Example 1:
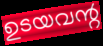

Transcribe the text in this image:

ഉടയവന്റ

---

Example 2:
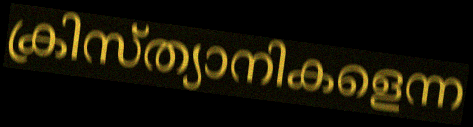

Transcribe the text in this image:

ക്രിസ്ത്യാനികളെന്ന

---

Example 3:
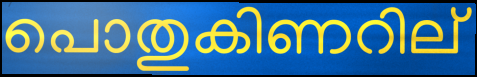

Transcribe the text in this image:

പൊതുകിണറില്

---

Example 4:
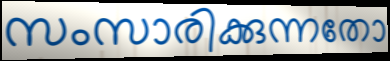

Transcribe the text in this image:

സംസാരിക്കുന്നതോ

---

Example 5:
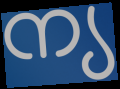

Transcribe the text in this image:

ന്യ